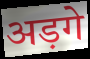
अड़गे